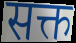
सक्त